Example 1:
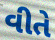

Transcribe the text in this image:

વીતે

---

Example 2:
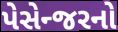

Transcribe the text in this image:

પેસેન્જરનો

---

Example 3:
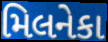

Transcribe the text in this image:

મિલનેકા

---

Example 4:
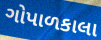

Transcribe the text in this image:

ગોપાળકાલા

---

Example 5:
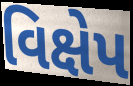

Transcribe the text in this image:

વિક્ષેપ